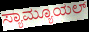
ಸ್ಯಾಮ್ಯೂಯಲ್